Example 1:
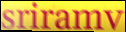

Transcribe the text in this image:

sriramv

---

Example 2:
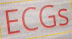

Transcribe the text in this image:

ECGs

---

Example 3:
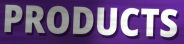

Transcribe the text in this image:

PRODUCTS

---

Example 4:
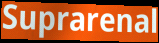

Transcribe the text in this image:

Suprarenal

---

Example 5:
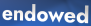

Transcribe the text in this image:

endowed